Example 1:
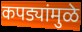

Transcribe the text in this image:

कपड्यांमुळे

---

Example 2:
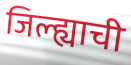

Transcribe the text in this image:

जिल्ह्याची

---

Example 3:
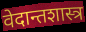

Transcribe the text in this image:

वेदान्तशास्त्र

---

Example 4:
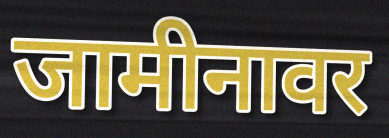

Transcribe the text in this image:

जामीनावर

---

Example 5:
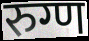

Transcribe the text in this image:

रुग्ण